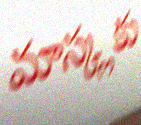
మాస్క్లకు